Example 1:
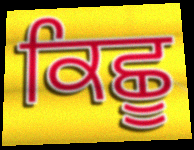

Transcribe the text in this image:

ਕਿਛੂ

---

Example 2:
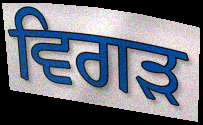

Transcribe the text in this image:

ਵਿਗੜ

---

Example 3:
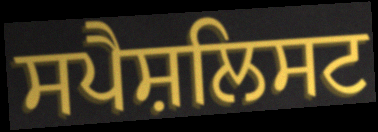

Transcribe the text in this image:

ਸਪੈਸ਼ਲਿਸਟ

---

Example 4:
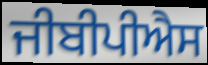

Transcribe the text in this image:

ਜੀਬੀਪੀਐਸ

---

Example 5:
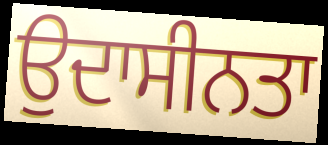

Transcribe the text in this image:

ਉਦਾਸੀਨਤਾ